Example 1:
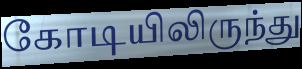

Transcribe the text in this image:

கோடியிலிருந்து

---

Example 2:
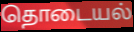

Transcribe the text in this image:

தொடையல்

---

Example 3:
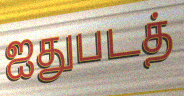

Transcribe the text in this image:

ஐதுபடத்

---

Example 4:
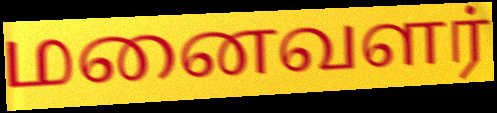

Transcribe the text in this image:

மனைவளர்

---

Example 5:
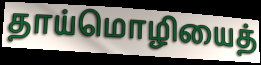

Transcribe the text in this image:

தாய்மொழியைத்